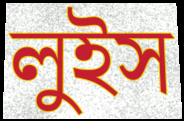
লুইস